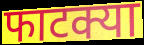
फाटक्या